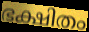
ഭക്ഷിതം